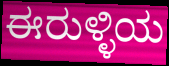
ಈರುಳ್ಳಿಯ